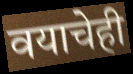
वयाचेही